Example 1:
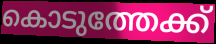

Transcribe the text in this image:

കൊടുത്തേക്ക്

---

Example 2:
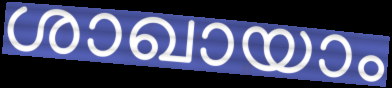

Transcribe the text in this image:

ശാഖായാം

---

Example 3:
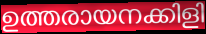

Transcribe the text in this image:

ഉത്തരായനക്കിളി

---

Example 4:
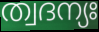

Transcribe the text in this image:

ത്വദന്യഃ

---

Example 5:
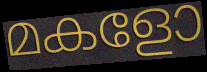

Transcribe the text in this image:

മകളോ